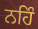
ਨਹਿੰ